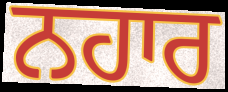
ਨਹਾਰ